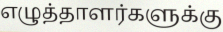
எழுத்தாளர்களுக்கு